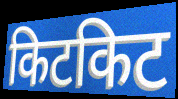
किटकिट